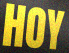
HOY